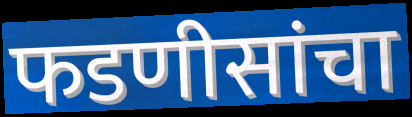
फडणीसांचा